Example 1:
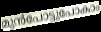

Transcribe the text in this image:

മുൻപോട്ടുപോകാം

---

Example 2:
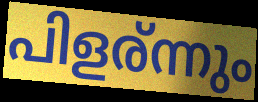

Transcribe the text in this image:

പിളര്ന്നും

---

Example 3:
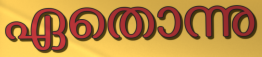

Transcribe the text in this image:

ഏതൊന്നു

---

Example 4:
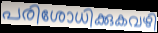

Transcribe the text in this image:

പരിശോധിക്കുകവഴി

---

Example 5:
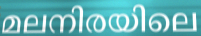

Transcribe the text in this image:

മലനിരയിലെ